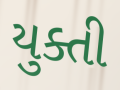
યુક્તી